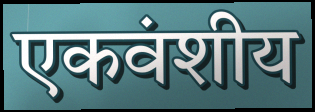
एकवंशीय